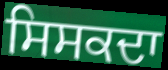
ਸਿਸਕਦਾ